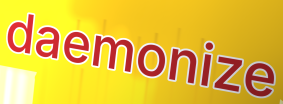
daemonize